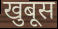
खुबूस